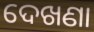
ଦେଖଣା